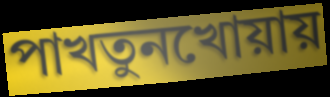
পাখতুনখোয়ায়